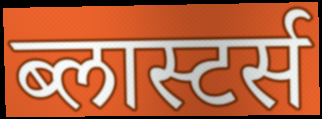
ब्लास्टर्स